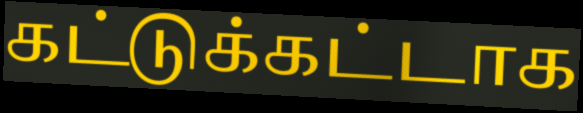
கட்டுக்கட்டாக